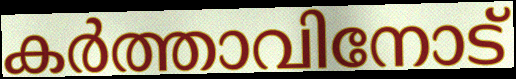
കർത്താവിനോട്